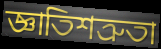
জ্ঞাতিশত্রুতা